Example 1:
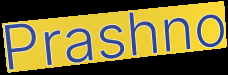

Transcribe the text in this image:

Prashno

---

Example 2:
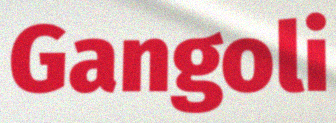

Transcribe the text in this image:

Gangoli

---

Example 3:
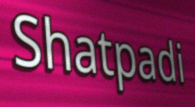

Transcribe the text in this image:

Shatpadi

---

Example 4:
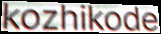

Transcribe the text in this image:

kozhikode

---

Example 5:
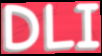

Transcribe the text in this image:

DLI